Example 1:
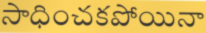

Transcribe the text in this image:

సాధించకపోయినా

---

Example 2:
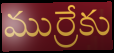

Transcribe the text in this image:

ముర్రేకు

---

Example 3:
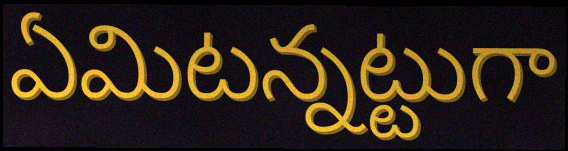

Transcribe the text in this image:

ఏమిటన్నట్టుగా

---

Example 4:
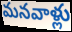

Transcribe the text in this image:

మనవాళ్లు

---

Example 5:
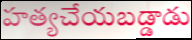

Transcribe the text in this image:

హత్యచేయబడ్డాడు